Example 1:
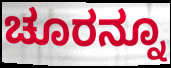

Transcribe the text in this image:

ಚೂರನ್ನೂ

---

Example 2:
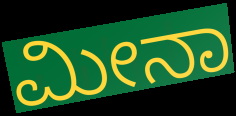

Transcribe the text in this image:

ಮೀನಾ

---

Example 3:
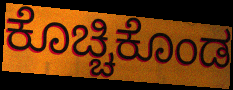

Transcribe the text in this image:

ಕೊಚ್ಚಿಕೊಂಡ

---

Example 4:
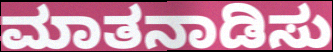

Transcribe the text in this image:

ಮಾತನಾಡಿಸು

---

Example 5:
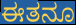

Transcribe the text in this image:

ಈತನೂ